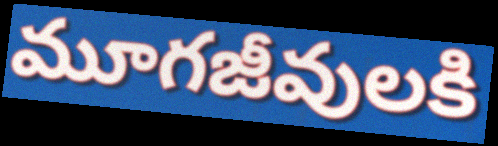
మూగజీవులకి